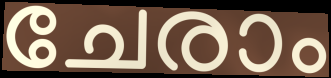
ചേരാം